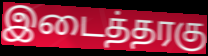
இடைத்தரகு